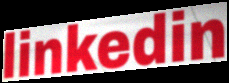
linkedin